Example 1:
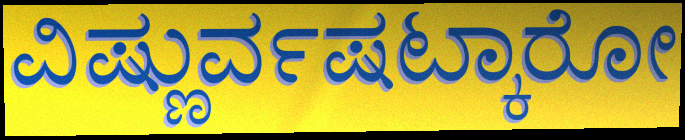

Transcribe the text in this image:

ವಿಷ್ಣುರ್ವಷಟ್ಕಾರೋ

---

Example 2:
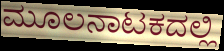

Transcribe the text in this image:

ಮೂಲನಾಟಕದಲ್ಲಿ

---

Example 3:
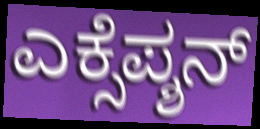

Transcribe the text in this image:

ಎಕ್ಸೆಪ್ಶನ್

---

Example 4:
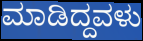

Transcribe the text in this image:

ಮಾಡಿದ್ದವಳು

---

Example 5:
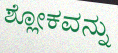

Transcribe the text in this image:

ಶ್ಲೋಕವನ್ನು